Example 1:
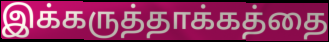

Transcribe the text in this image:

இக்கருத்தாக்கத்தை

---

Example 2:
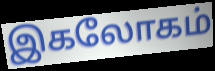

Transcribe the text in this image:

இகலோகம்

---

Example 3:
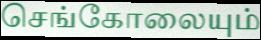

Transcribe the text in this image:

செங்கோலையும்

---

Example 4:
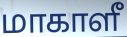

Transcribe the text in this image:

மாகாளீ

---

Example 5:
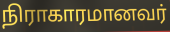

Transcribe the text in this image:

நிராகாரமானவர்